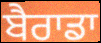
ਬੈਰਾਡਾ